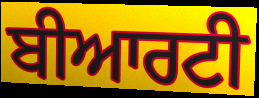
ਬੀਆਰਟੀ